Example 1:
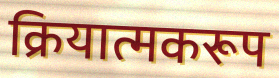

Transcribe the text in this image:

क्रियात्मकरूप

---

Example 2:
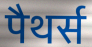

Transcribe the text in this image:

पैथर्स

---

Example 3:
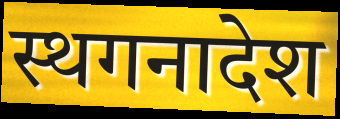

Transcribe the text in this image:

स्थगनादेश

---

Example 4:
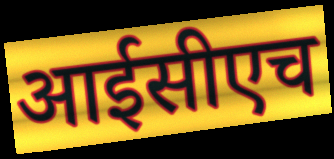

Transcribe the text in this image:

आईसीएच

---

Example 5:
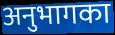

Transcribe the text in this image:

अनुभागका